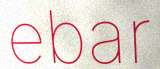
ebar